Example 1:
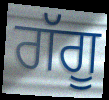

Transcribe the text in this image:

ਗੱਗੂ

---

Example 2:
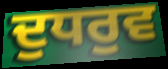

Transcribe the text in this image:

ਦੁਧਰੁਵ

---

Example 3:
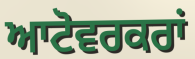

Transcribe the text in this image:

ਆਟੋਵਰਕਰਾਂ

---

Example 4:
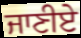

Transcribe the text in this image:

ਜਾਣੀਏ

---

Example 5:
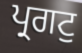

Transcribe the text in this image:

ਪ੍ਰਗਟੁ